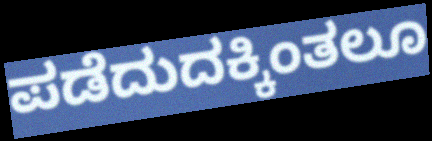
ಪಡೆದುದಕ್ಕಿಂತಲೂ